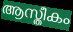
ആസ്തീകം